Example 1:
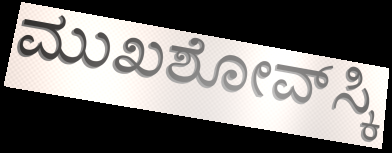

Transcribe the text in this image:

ಮುಖಶೋವ್‌ಸ್ಕಿ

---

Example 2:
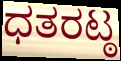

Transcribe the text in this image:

ಧತರಟ್ಠ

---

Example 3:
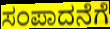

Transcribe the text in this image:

ಸಂಪಾದನೆಗೆ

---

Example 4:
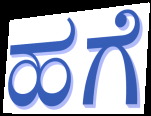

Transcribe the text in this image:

ಹಗೆ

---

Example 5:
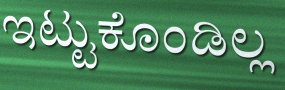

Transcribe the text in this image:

ಇಟ್ಟುಕೊಂಡಿಲ್ಲ